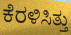
ಕೆರಳಿಸಿತ್ತು